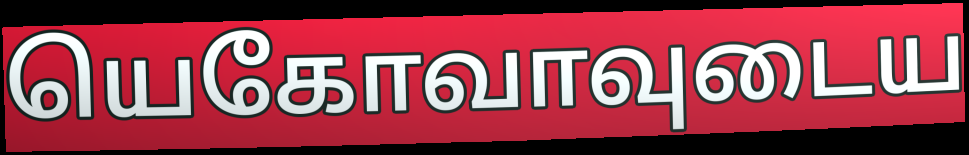
யெகோவாவுடைய